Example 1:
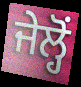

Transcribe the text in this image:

ਜੇਲ੍ਹੋਂ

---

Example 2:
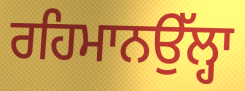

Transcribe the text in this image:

ਰਹਿਮਾਨਉੱਲ੍ਹਾ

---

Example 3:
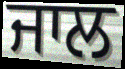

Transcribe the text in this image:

ਜਾਲ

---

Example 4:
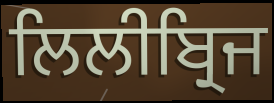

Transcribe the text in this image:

ਲਿਲੀਬ੍ਰਿਜ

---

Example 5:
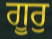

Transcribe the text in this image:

ਗੂਰੁ